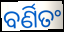
ବର୍ଣିତଂ